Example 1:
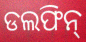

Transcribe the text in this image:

ଡଲଫିନ୍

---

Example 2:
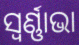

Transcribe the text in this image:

ସ୍ୱର୍ଣ୍ଣାଭା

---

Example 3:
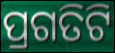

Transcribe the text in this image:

ପ୍ରଗତିଟି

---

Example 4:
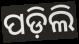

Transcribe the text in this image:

ପଡ଼ିଲି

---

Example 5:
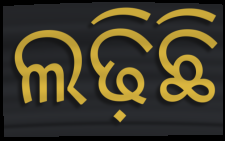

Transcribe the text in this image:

ଲଢ଼ିଛି